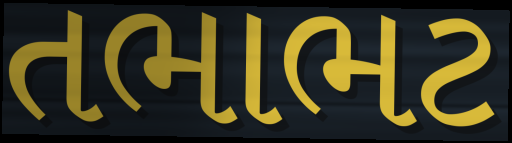
તભાભટ